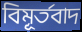
বিমূর্তবাদ